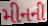
મીનની